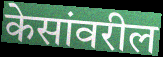
केसांवरील